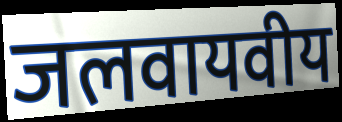
जलवायवीय